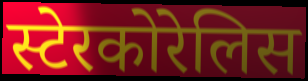
स्टेरकोरेलिस